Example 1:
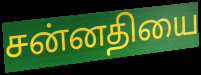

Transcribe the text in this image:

சன்னதியை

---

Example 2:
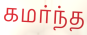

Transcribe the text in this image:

கமர்ந்த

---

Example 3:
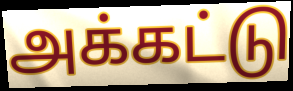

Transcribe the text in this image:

அக்கட்டு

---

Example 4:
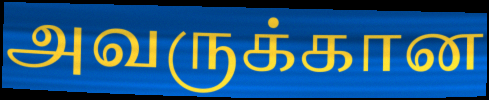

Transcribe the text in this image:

அவருக்கான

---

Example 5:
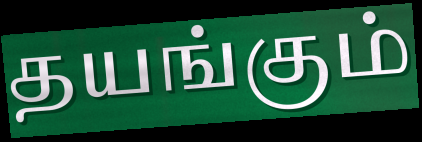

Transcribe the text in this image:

தயங்கும்